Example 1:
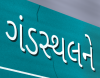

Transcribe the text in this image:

ગંડસ્થલને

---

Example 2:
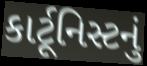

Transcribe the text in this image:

કાર્ટૂનિસ્ટનું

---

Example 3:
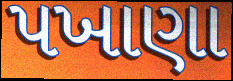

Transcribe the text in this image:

પખાણા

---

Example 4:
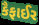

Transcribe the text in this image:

કૈફાઈર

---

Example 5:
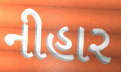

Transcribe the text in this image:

નીહાર